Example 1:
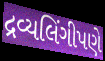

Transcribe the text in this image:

દ્રવ્યલિંગીપણે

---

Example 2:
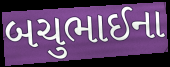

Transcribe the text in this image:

બચુભાઈના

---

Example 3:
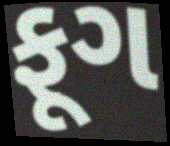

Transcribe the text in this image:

ફૂગ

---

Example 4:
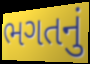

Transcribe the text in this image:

ભગતનું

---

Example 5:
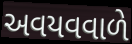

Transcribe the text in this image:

અવયવવાળે